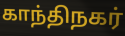
காந்திநகர்